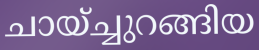
ചായ്ച്ചുറങ്ങിയ